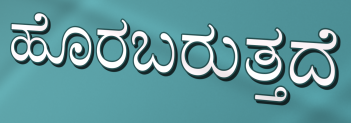
ಹೊರಬರುತ್ತದೆ